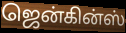
ஜென்கின்ஸ்